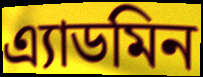
এ্যাডমিন